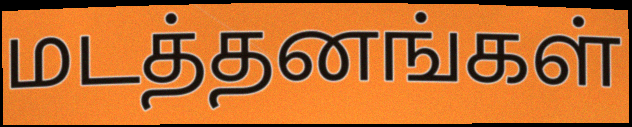
மடத்தனங்கள்